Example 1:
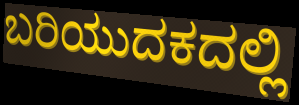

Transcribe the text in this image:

ಬರಿಯುದಕದಲ್ಲಿ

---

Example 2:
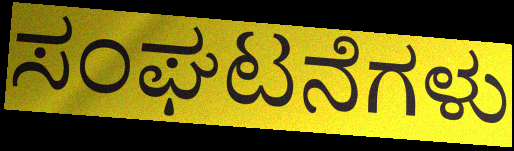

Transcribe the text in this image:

ಸಂಘಟನೆಗಳು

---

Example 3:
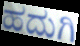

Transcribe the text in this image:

ಹದುಗಿ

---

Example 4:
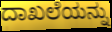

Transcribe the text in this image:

ದಾಖಲೆಯನ್ನು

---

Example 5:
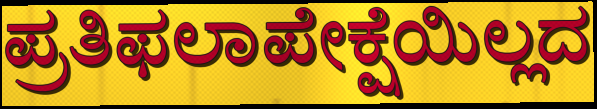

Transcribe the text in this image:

ಪ್ರತಿಫಲಾಪೇಕ್ಷೆಯಿಲ್ಲದ